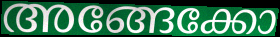
അങ്ങേക്കോ